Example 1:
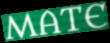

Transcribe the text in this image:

MATE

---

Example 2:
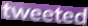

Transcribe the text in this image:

tweeted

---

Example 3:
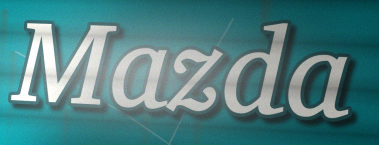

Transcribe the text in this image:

Mazda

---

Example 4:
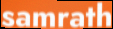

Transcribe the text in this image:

samrath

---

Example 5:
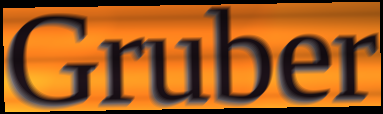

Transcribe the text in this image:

Gruber